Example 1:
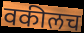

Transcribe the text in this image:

वकीलच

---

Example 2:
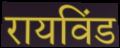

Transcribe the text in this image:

रायविंड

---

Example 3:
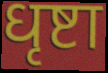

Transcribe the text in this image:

धृष्टा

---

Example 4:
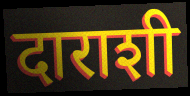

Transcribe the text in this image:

दाराशी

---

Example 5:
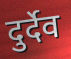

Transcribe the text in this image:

दुर्देव